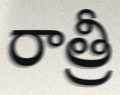
రాత్రీ